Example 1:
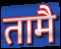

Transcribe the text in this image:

तामै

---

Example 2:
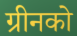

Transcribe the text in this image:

ग्रीनको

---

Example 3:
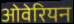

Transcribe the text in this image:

ओवेरियन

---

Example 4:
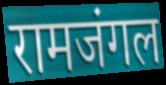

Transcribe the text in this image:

रामजंगल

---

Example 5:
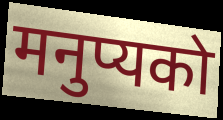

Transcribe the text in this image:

मनुप्यको